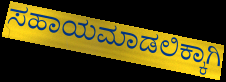
ಸಹಾಯಮಾಡಲಿಕ್ಕಾಗಿ